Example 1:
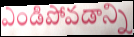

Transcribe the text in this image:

ఎండిపోవడాన్ని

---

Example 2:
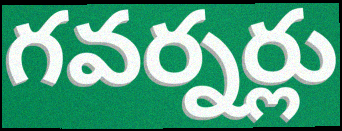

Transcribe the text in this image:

గవర్నర్లు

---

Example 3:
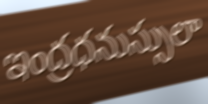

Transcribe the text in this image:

ఇంద్రధనుస్సులా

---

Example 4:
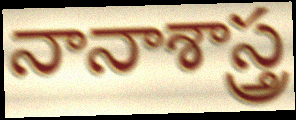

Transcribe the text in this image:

నానాశాస్త్ర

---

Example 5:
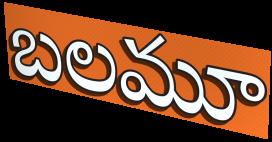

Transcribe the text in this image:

బలమూ